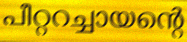
പീറ്ററച്ചായന്റെ